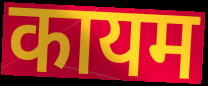
कायम